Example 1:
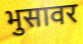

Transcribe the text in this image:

भुसावर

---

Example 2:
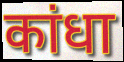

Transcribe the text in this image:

कांधा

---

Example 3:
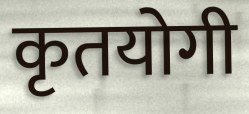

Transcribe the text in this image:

कृतयोगी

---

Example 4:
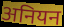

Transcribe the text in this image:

अनियन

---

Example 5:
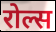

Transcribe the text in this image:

रोल्स